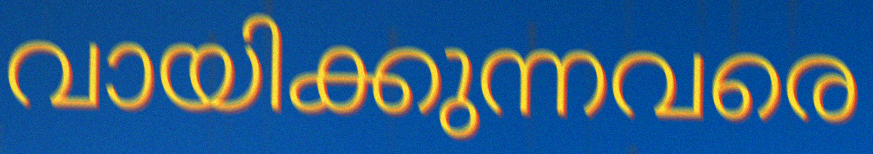
വായിക്കുന്നവരെ